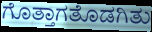
ಗೊತ್ತಾಗತೊಡಗಿತು